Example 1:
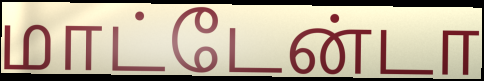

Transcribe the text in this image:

மாட்டேன்டா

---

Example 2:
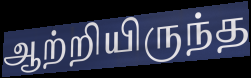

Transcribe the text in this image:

ஆற்றியிருந்த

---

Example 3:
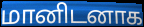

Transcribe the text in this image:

மானிடனாக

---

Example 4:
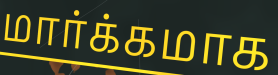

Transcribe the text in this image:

மார்க்கமாக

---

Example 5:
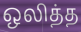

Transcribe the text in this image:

ஒலித்த